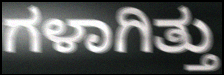
ಗಳಾಗಿತ್ತು